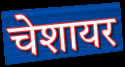
चेशायर